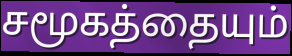
சமூகத்தையும்